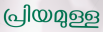
പ്രിയമുള്ള